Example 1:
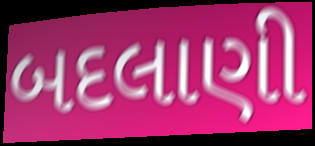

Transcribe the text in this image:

બદલાણી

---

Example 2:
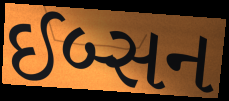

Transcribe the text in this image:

ઈબ્સન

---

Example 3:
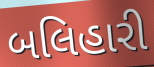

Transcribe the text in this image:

બલિહારી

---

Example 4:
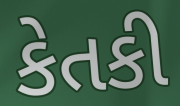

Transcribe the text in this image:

કેતકી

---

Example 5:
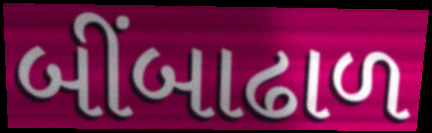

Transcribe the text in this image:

બીંબાઢાળ